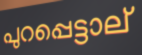
പുറപ്പെട്ടാല്